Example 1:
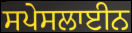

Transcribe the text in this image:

ਸਪੇਸਲਾਈਨ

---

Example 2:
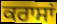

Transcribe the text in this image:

ਕਰਾਸਾਂ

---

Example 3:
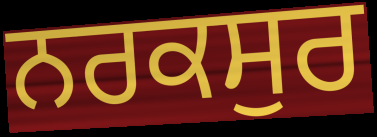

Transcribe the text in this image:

ਨਰਕਸੁਰ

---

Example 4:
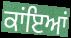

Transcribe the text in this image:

ਕਾਂਇਆਂ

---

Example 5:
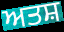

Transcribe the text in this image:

ਅਤਸ਼